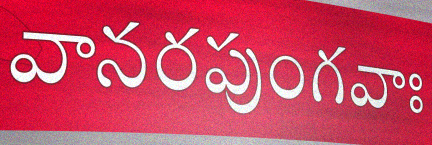
వానరపుంగవాః